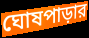
ঘোষপাড়ার